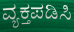
ವ್ಯಕ್ತಪಡಿಸಿ